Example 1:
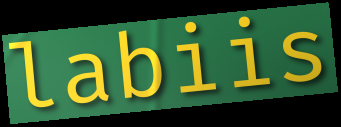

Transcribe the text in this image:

labiis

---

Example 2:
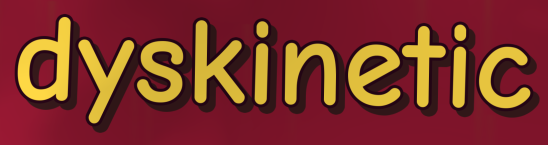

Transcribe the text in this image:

dyskinetic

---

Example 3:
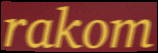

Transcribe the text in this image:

rakom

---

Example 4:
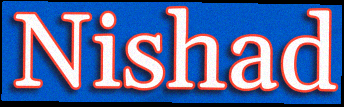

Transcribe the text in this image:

Nishad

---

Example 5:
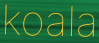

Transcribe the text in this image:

koala